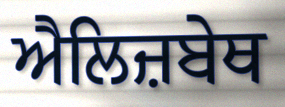
ਐਲਿਜ਼ਬੇਥ